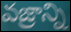
వజ్రాన్ని